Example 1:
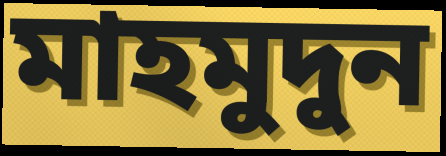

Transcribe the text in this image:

মাহমুদুন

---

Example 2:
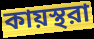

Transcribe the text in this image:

কায়স্থরা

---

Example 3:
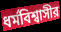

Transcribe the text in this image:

ধর্মবিশ্বাসীর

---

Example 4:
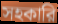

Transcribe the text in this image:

সহকারি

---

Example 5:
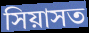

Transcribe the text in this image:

সিয়াসত